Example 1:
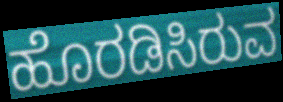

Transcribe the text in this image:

ಹೊರಡಿಸಿರುವ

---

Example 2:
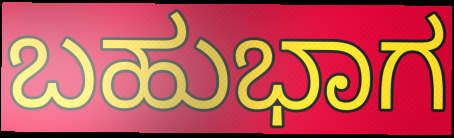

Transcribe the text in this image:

ಬಹುಭಾಗ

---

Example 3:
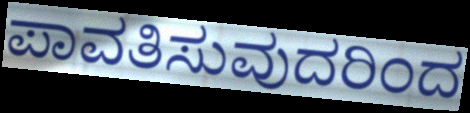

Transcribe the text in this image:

ಪಾವತಿಸುವುದರಿಂದ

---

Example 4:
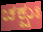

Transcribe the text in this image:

ಚಕ್ಷುಃ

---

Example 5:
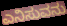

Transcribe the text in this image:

ಎನಿಸುವನು